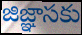
జిజ్ఞాసకు